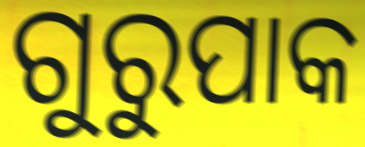
ଗୁରୁପାକ